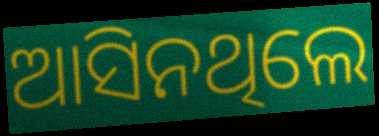
ଆସିନଥିଲେ